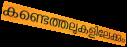
കണ്ടെത്തലുകളിലേക്കും